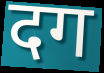
दग